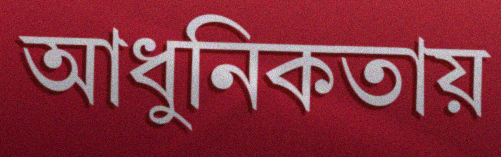
আধুনিকতায়